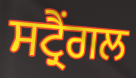
ਸਟ੍ਰੈਂਗਲ